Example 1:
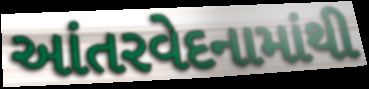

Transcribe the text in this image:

આંતરવેદનામાંથી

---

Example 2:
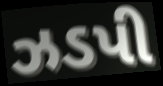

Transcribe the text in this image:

ઝડપી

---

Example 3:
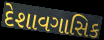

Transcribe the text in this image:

દેશાવગાસિક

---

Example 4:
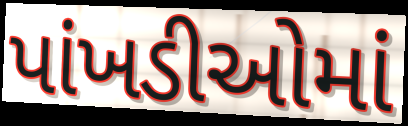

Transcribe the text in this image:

પાંખડીઓમાં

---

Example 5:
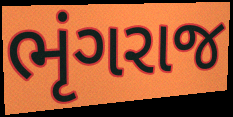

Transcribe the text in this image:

ભૃંગરાજ